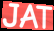
JAT